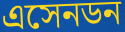
এসেনডন